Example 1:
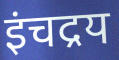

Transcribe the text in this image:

इंचद्रय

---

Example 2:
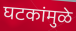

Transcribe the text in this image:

घटकांमुळे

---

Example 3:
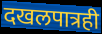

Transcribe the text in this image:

दखलपात्रही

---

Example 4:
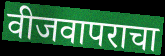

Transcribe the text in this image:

वीजवापराचा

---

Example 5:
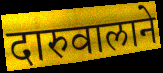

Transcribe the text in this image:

दारुवालाने